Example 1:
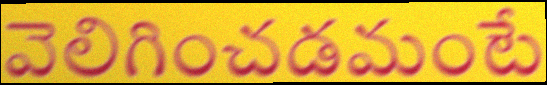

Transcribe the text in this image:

వెలిగించడమంటే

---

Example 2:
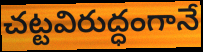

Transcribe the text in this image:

చట్టవిరుద్ధంగానే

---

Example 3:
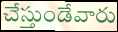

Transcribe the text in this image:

చేస్తుండేవారు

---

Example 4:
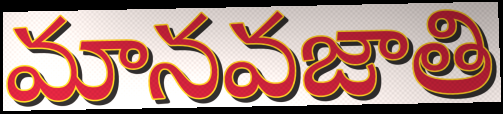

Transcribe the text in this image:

మానవజాతి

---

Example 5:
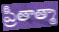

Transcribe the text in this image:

ప్రీతాత్మా